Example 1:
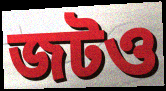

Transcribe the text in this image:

জটও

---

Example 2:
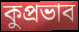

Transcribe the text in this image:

কুপ্রভাব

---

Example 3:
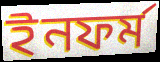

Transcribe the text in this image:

ইনফর্ম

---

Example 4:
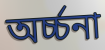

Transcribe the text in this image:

অর্চ্চনা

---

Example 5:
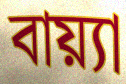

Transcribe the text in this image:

বায়্যা